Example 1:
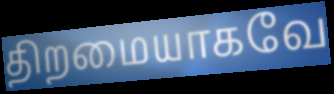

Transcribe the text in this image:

திறமையாகவே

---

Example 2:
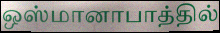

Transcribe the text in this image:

ஒஸ்மானாபாத்தில்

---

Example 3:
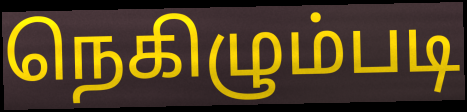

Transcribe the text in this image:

நெகிழும்படி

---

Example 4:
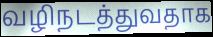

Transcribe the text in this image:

வழிநடத்துவதாக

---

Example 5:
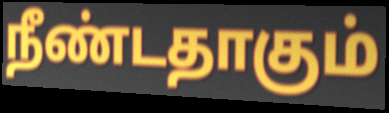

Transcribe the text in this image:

நீண்டதாகும்